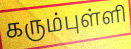
கரும்புள்ளி